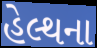
હેલ્થના